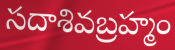
సదాశివబ్రహ్మం